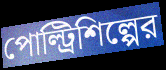
পোল্ট্রিশিল্পের